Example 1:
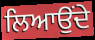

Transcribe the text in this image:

ਲਿਆਉਂਦੇ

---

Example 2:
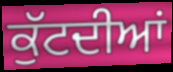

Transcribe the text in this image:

ਕੁੱਟਦੀਆਂ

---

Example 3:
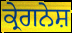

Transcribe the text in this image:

ਕ੍ਰੇਗਨੇਸ਼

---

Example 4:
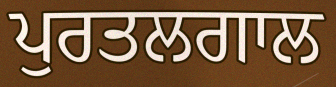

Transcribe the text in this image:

ਪੁਰਤਲਗਾਲ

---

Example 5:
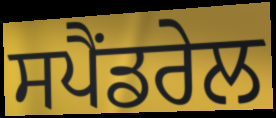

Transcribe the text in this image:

ਸਪੈਂਡਰੇਲ